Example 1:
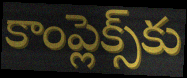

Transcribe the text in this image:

కాంప్లెక్స్‌కు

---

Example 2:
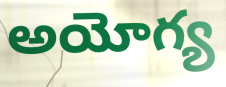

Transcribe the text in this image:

అయోగ్య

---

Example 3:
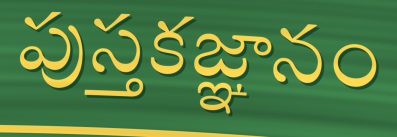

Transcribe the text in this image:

పుస్తకజ్ఞానం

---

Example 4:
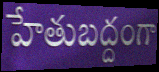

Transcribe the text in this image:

హేతుబద్దంగా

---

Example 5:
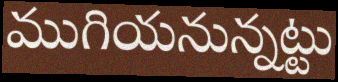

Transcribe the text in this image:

ముగియనున్నట్టు